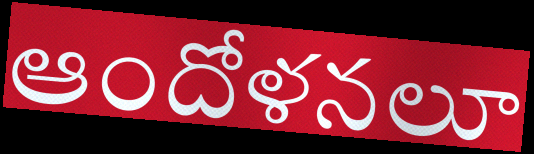
ఆందోళనలూ